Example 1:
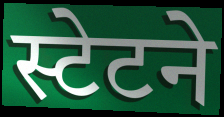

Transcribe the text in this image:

स्टेटने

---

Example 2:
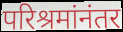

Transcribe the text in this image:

परिश्रमांनंतर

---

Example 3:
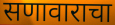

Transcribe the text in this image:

सणावाराचा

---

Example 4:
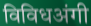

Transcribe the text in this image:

विविधअंगी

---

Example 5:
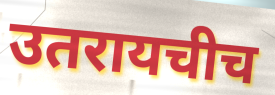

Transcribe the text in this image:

उतरायचीच